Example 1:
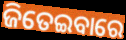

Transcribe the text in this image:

ଜିତେଇବାରେ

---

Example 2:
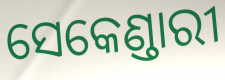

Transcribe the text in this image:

ସେକେଣ୍ଡାରୀ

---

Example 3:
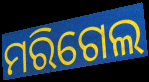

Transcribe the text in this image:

ମରିଗେଲ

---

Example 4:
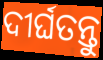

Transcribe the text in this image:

ଦୀର୍ଘତନ୍ତୁ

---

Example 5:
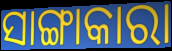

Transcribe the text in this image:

ସାଙ୍ଗାକାରା